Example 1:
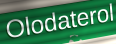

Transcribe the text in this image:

Olodaterol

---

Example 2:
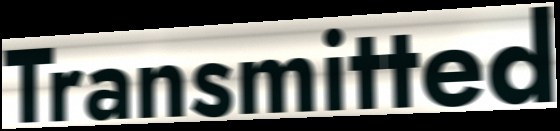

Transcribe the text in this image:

Transmitted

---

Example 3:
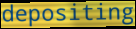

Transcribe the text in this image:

depositing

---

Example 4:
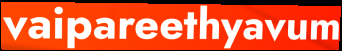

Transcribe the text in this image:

vaipareethyavum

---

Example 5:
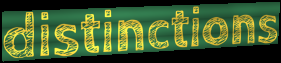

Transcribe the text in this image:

distinctions